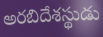
అరబిదేశస్థుడు